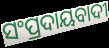
ସଂପ୍ରଦାୟବାଦୀ